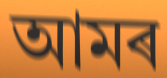
আমৰ